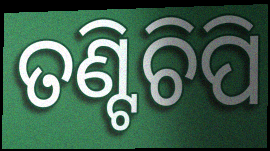
ତଣ୍ଟିଚିପି